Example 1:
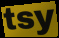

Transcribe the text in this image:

tsy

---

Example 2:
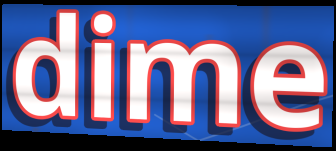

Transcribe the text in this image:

dime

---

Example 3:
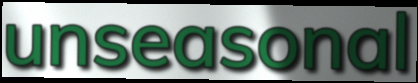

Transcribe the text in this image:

unseasonal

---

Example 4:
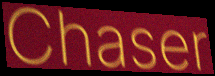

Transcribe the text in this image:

Chaser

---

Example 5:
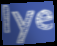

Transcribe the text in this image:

Iye